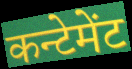
कन्टेमेंट